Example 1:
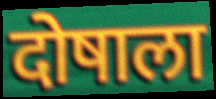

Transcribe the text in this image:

दोषाला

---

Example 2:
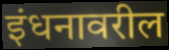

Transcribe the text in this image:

इंधनावरील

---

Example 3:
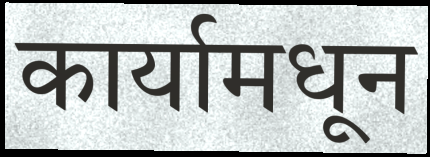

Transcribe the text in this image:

कार्यामधून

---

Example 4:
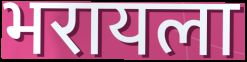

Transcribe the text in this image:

भरायला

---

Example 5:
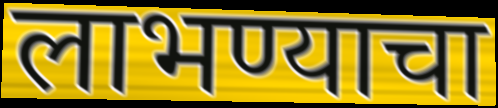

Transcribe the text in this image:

लाभण्याचा